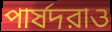
পার্ষদরাও